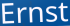
Ernst